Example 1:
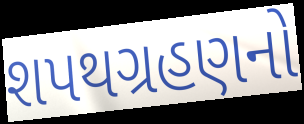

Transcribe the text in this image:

શપથગ્રહણનો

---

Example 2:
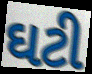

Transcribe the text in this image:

ઘટી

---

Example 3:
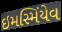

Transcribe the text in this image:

ઇમસ્મિંયેવ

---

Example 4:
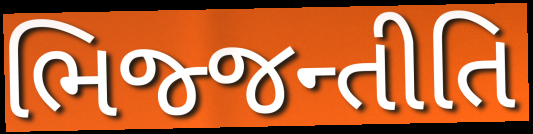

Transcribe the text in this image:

ભિજ્જન્તીતિ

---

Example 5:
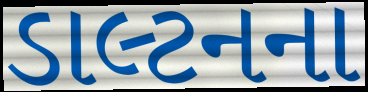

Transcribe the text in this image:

ડાલ્ટનના